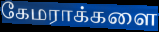
கேமராக்களை